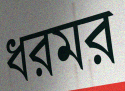
ধরমর